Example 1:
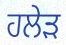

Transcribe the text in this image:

ਹਲੇੜ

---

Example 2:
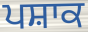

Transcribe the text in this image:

ਪਸ਼ਾਕ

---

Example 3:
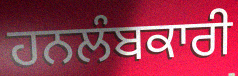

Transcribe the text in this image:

ਹਨਲੰਬਕਾਰੀ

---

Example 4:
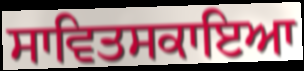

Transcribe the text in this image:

ਸਾਵਿਤਸਕਾਇਆ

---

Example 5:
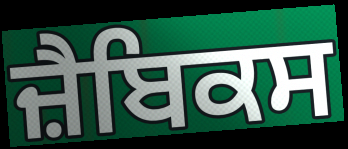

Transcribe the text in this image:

ਜ਼ੈਬਿਕਸ